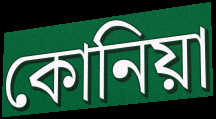
কোনিয়া